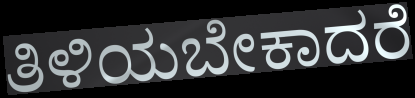
ತಿಳಿಯಬೇಕಾದರೆ